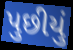
પુછીયું